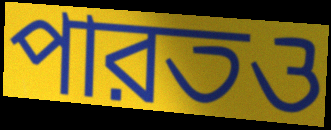
পারতও